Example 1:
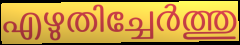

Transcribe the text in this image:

എഴുതിച്ചേർത്തു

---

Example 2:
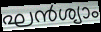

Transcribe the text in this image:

ഘൻശ്യാം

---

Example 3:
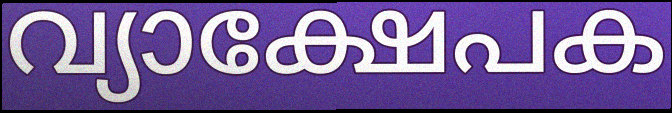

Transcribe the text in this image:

വ്യാക്ഷേപക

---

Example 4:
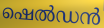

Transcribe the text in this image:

ഷെൽഡൻ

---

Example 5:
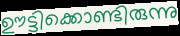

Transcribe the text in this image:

ഊട്ടിക്കൊണ്ടിരുന്നു